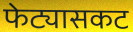
फेट्यासकट